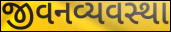
જીવનવ્યવસ્થા